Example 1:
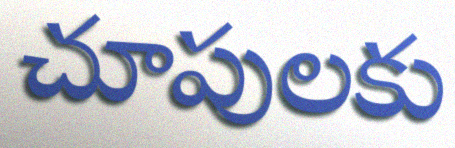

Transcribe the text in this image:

చూపులకు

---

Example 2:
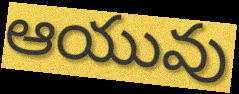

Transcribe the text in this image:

ఆయువు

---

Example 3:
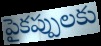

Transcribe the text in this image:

పైకప్పులకు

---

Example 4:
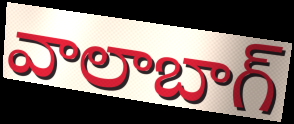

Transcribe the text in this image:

వాలాబాగ్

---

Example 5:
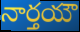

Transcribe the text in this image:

నార్తయౌ